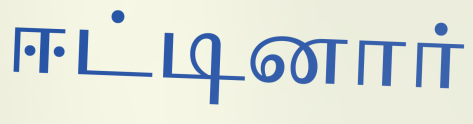
ஈட்டினார்